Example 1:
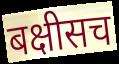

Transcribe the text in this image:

बक्षीसच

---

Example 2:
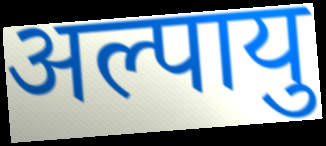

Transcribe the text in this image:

अल्पायु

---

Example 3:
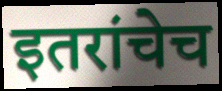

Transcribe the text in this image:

इतरांचेच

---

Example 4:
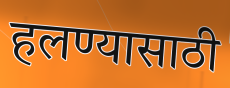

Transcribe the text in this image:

हलण्यासाठी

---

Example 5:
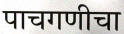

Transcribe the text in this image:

पाचगणीचा